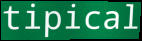
tipical